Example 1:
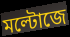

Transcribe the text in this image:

মল্টোজে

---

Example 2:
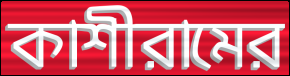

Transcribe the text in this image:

কাশীরামের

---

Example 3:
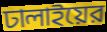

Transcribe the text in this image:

ঢালাইয়ের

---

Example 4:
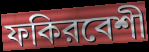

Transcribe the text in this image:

ফকিরবেশী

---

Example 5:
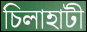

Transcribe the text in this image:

চিলাহাটী